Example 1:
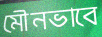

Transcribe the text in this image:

মৌনভাবে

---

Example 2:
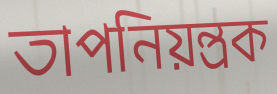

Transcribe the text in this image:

তাপনিয়ন্ত্রক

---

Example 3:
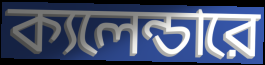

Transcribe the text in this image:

ক্যলেন্ডারে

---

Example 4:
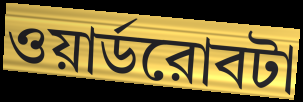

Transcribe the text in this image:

ওয়ার্ডরোবটা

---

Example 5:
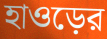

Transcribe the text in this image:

হাওড়ের